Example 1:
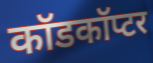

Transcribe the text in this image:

कॉडकॉप्टर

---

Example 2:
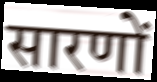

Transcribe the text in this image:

सारणों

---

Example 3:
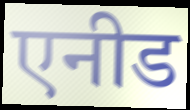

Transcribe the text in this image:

एनीड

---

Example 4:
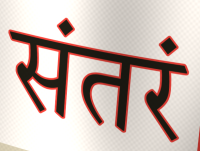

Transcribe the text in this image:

संतरं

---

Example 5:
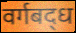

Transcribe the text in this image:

वर्गबद्ध